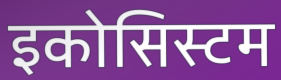
इकोसिस्टम